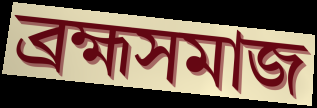
ব্রহ্মসমাজ